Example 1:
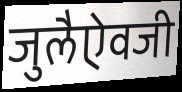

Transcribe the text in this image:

जुलैऐवजी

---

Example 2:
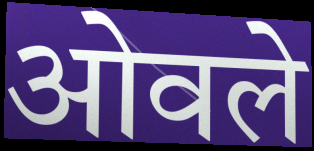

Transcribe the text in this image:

ओवले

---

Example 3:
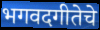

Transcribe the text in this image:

भगवदगीतेचे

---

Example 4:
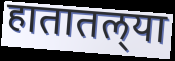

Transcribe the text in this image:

हातातल्या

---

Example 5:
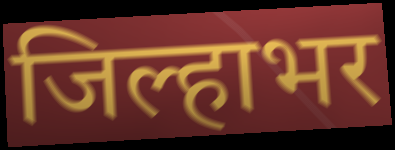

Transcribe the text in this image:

जिल्हाभर